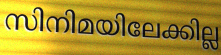
സിനിമയിലേക്കില്ല